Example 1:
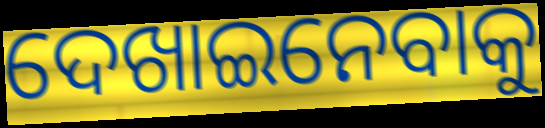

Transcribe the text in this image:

ଦେଖାଇନେବାକୁ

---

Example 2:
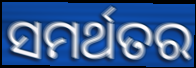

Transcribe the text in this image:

ସମର୍ଥତର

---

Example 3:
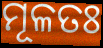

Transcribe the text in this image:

ମୂଳତଃ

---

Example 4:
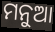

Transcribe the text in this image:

ମନୁଆ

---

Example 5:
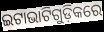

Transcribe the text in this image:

ଇଟାଭାଟିଗୁଡ଼ିକରେ